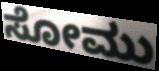
ಸೋಮು